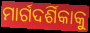
ମାର୍ଗଦର୍ଶିକାକୁ